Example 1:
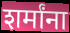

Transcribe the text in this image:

शर्मांना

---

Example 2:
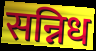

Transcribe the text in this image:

सन्निध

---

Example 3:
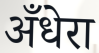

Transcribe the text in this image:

अँधेरा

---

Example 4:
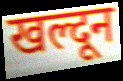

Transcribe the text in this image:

खल्दून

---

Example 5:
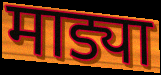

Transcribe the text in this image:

माड्या